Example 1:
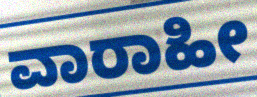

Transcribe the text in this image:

ವಾರಾಹೀ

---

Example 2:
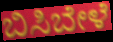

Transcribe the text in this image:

ಬಿಸಿಬೇಳೆ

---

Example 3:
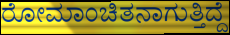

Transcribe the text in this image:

ರೋಮಾಂಚಿತನಾಗುತ್ತಿದ್ದೆ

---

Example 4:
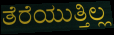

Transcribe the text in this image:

ತೆರೆಯುತ್ತಿಲ್ಲ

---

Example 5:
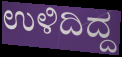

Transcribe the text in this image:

ಉಳಿದಿದ್ದ